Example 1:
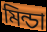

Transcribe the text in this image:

মিন্ডা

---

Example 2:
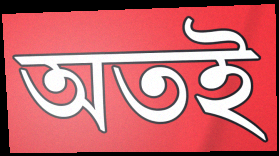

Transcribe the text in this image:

অতই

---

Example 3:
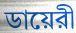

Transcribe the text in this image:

ডায়েরী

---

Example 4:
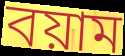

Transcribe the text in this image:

বয়াম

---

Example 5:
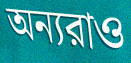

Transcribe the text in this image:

অন্যরাও